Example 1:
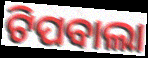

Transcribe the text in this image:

ଟିପବାଲା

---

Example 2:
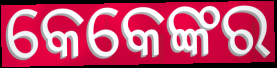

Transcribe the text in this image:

କେକେଙ୍କର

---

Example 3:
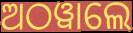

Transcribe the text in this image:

ଅଠୱାଲେ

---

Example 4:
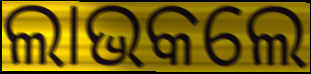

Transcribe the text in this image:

ଲାଭକଲେ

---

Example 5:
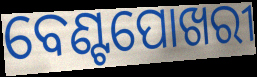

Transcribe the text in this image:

ବେଣ୍ଟପୋଖରୀ